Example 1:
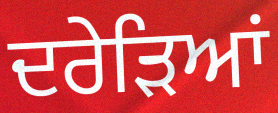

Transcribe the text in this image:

ਦਰੇੜਿਆਂ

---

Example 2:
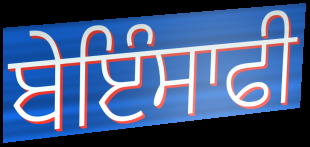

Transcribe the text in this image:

ਬੇਇੰਸਾਫੀ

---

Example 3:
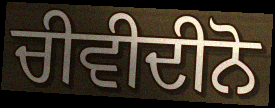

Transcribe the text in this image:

ਚੀਵੀਦੀਨੋ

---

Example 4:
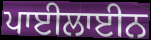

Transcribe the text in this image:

ਪਾਈਲਾਈਨ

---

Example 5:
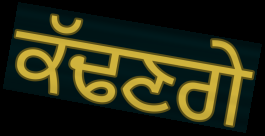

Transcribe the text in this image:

ਕੱਢਣਗੇ